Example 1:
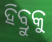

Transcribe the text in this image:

ହିବ୍ରୁକୁ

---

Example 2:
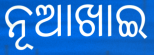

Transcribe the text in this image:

ନୂଆଖାଇ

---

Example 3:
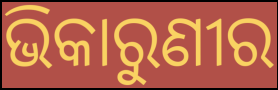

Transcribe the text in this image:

ଭିକାରୁଣୀର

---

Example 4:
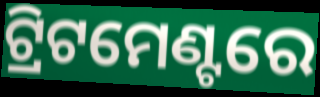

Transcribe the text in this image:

ଟ୍ରିଟମେଣ୍ଟରେ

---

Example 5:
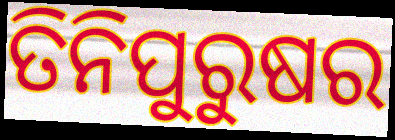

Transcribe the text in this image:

ତିନିପୁରୁଷର